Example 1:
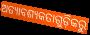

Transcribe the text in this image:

ଅତ୍ୟାବଶ୍ୟକତାଗୁଡ଼ିକରୁ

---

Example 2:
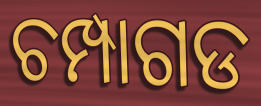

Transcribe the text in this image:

ଚମ୍ପାଗଡ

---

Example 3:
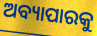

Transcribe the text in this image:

ଅବ୍ୟାପାରକୁ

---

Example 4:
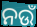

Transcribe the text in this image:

ନଉଁ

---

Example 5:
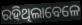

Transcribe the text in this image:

ରହିଥିଲାବେଳେ